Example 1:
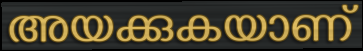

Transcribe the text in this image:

അയക്കുകയാണ്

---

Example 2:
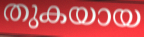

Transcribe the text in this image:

തുകയായ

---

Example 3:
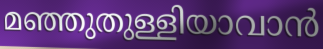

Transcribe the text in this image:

മഞ്ഞുതുള്ളിയാവാൻ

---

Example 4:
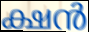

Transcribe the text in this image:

ക്ഷൻ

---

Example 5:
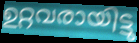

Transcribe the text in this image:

ഉറ്റവരായിട്ടു